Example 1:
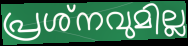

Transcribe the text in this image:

പ്രശ്‌നവുമില്ല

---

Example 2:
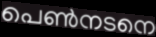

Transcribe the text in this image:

പെൺനടനെ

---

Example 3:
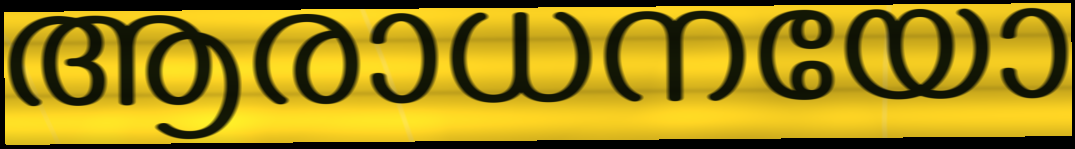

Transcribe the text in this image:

ആരാധനയോ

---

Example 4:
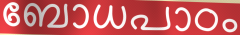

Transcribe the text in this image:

ബോധപാഠം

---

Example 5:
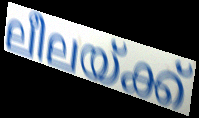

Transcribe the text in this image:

ലീലയ്ക്ക്